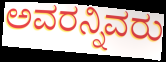
ಅವರನ್ನಿವರು